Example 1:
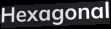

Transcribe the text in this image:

Hexagonal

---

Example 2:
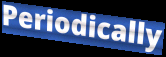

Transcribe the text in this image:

Periodically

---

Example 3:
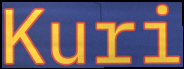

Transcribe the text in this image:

Kuri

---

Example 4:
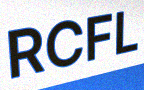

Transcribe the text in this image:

RCFL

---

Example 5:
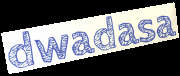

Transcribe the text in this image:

dwadasa